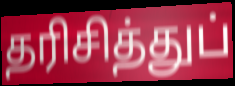
தரிசித்துப்